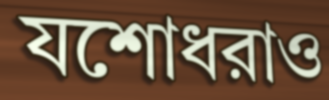
যশোধরাও